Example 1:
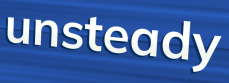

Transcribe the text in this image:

unsteady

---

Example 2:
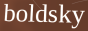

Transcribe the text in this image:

boldsky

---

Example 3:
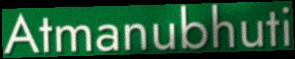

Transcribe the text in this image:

Atmanubhuti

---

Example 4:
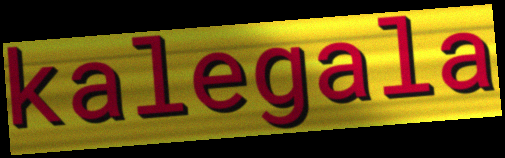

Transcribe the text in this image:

kalegala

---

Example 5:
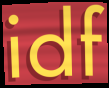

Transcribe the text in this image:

idf